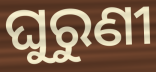
ଘୁରୁଣୀ